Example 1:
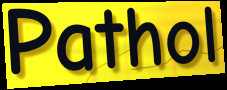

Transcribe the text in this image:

Pathol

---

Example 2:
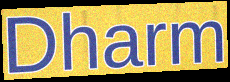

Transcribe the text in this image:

Dharm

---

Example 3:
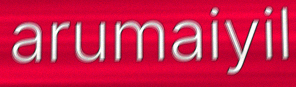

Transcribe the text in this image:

arumaiyil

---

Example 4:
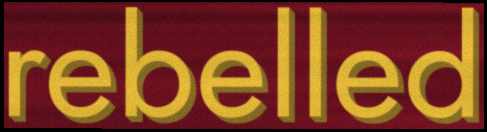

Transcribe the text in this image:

rebelled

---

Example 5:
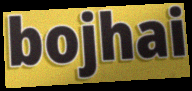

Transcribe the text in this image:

bojhai